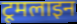
टूमलाइन